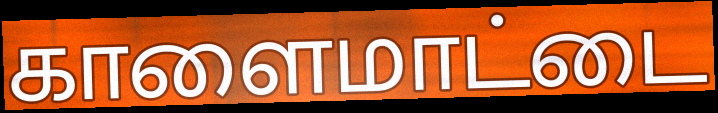
காளைமாட்டை